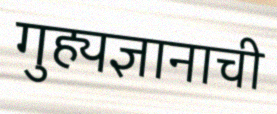
गुह्यज्ञानाची